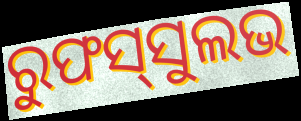
ରୁଫସ୍‌ସୁଲଭ